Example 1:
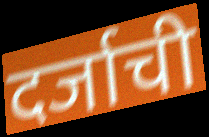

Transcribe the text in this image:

दर्जाची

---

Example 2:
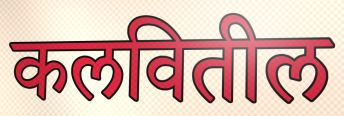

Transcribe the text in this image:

कलवितील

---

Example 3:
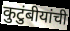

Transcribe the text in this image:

कुटुंबीयांची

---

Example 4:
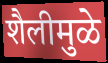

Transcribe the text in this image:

शैलीमुळे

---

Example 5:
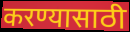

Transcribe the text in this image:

करण्यासाठी